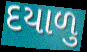
દયાળુ